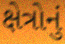
ક્ષેત્રોનું